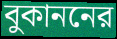
বুকাননের